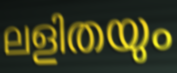
ലളിതയും